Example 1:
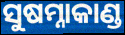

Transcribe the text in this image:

ସୁଷମ୍ନାକାଣ୍ଡ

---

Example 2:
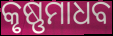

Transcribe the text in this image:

କୃଷ୍ଣମାଧବ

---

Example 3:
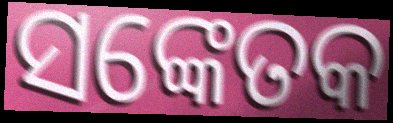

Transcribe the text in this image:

ସଙ୍କେତକ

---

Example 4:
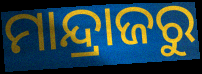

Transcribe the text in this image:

ମାନ୍ଦ୍ରାଜରୁ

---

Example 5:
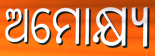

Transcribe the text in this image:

ଅମୋକ୍ଷ୍ୟ